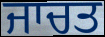
ਜਾਚਤ